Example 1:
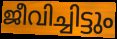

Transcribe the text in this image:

ജീവിച്ചിട്ടും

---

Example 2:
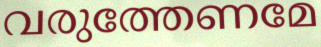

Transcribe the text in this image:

വരുത്തേണമേ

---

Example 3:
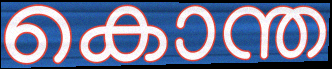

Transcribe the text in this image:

കൊന്ത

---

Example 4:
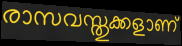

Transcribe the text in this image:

രാസവസ്തുക്കളാണ്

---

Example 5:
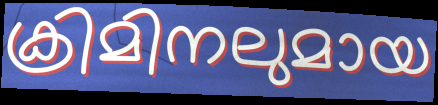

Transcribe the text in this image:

ക്രിമിനലുമായ